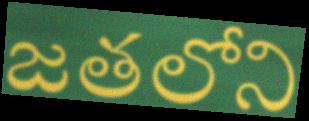
జతలోని